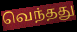
வெந்தது